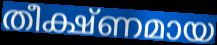
തീക്ഷ്‌ണമായ